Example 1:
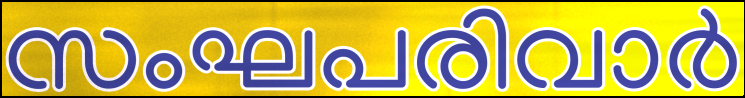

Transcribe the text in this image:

സംഘപരിവാർ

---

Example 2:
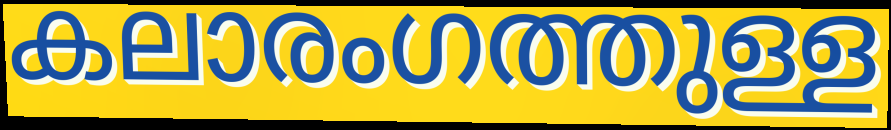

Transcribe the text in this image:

കലാരംഗത്തുള്ള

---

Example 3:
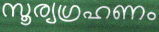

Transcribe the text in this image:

സൂര്യഗ്രഹണം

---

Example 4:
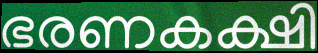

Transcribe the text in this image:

ഭരണകക്ഷി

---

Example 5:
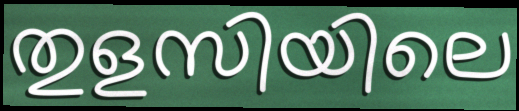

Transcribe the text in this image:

തുളസിയിലെ